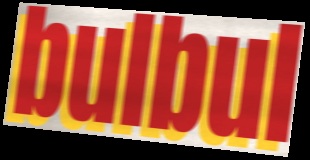
bulbul